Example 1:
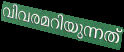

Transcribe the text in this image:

വിവരമറിയുന്നത്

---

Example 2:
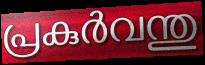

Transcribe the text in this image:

പ്രകുർവന്തു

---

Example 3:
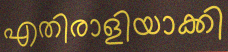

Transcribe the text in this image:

എതിരാളിയാക്കി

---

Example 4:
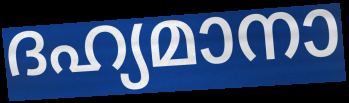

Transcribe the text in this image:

ദഹ്യമാനാ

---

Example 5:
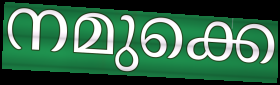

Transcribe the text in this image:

നമുക്കെ